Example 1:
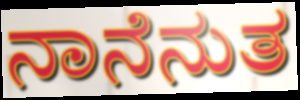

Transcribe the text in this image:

ನಾನೆನುತ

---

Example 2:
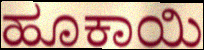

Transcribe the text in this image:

ಹೂಕಾಯಿ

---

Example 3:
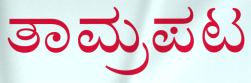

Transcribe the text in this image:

ತಾಮ್ರಪಟ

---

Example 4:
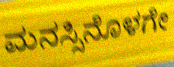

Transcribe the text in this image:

ಮನಸ್ಸಿನೊಳಗೇ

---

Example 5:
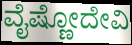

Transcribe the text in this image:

ವೈಷ್ಣೋದೇವಿ